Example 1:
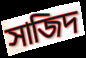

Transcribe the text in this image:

সাজিদ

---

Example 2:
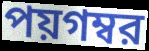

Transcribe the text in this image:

পয়গম্বর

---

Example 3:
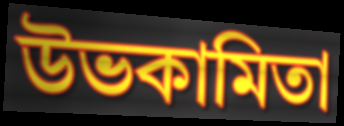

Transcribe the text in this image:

উভকামিতা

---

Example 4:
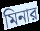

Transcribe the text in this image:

মিনার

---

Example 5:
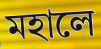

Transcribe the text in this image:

মহালে